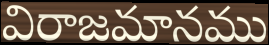
విరాజమానము